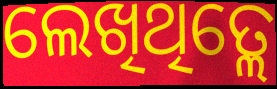
ଲେଖିଥିତ୍ଲେ